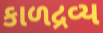
કાળદ્રવ્ય